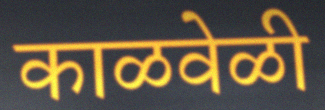
काळवेळी